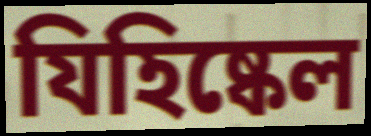
যিহিষ্কেল